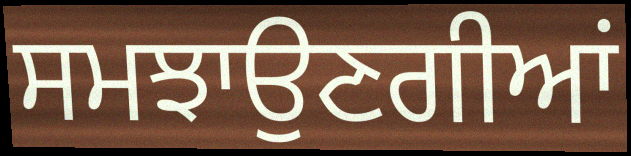
ਸਮਝਾਉਣਗੀਆਂ